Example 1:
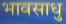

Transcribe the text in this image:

भावसाधु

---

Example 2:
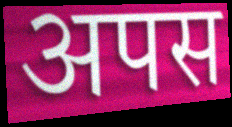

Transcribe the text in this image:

अपस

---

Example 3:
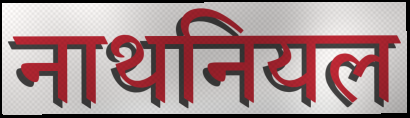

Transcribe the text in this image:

नाथनियल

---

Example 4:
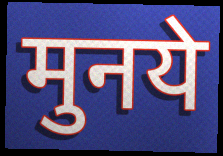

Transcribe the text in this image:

मुनये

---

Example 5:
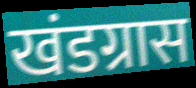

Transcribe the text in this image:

खंडग्रास